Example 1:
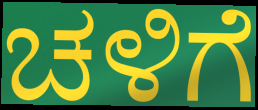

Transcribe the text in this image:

ಚಳಿಗೆ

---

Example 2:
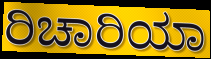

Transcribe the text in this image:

ರಿಚಾರಿಯಾ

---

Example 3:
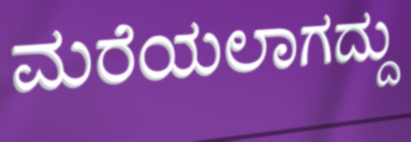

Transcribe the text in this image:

ಮರೆಯಲಾಗದ್ದು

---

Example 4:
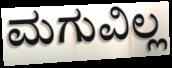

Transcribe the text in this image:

ಮಗುವಿಲ್ಲ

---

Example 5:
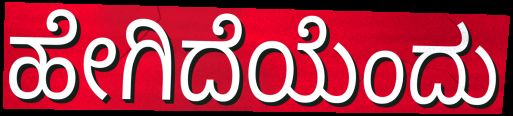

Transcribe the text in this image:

ಹೇಗಿದೆಯೆಂದು